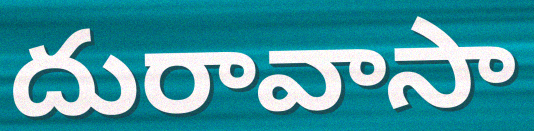
దురావాసా